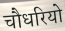
चौधरियो